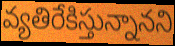
వ్యతిరేకిస్తున్నానని